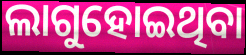
ଲାଗୁହୋଇଥିବା